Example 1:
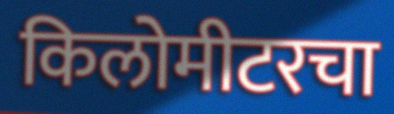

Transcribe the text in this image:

किलोमीटरचा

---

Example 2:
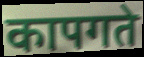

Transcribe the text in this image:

कापगते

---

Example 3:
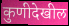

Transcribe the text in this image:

कुणीदेखील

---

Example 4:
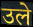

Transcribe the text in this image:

उले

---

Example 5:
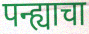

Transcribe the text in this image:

पन्ह्याचा